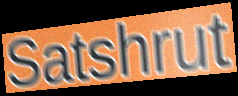
Satshrut